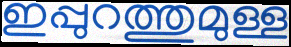
ഇപ്പുറത്തുമുള്ള